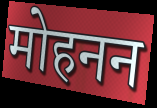
मोहनन